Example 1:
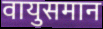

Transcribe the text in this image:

वायुसमान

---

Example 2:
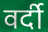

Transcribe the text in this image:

वर्दी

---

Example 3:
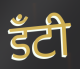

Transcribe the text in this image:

डँटी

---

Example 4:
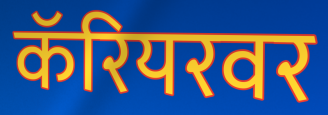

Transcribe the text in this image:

कॅरियरवर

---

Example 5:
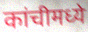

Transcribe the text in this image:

कांचीमध्ये